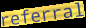
referral